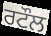
ਰਟੌਲ